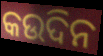
କଉଦିନ